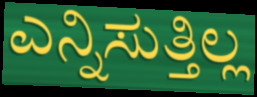
ಎನ್ನಿಸುತ್ತಿಲ್ಲ